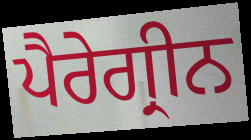
ਪੈਰੇਗ੍ਰੀਨ